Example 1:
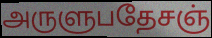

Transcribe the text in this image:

அருளுபதேசஞ்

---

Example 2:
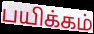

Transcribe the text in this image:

பயிக்கம்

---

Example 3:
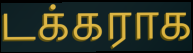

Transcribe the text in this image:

டக்கராக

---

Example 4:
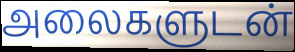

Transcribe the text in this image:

அலைகளுடன்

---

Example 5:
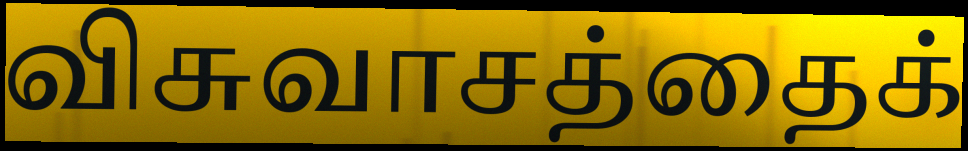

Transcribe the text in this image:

விசுவாசத்தைக்